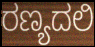
ರಣ್ಯದಲಿ